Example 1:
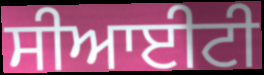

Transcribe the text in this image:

ਸੀਆਈਟੀ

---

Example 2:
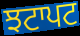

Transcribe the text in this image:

ਝਟਾਪਟ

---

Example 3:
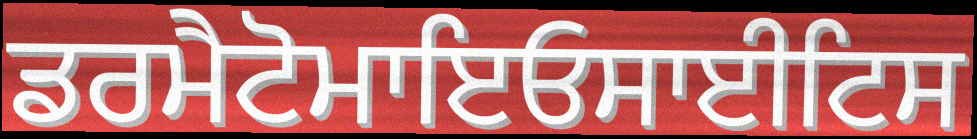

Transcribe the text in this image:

ਡਰਮੈਟੋਮਾਇਓਸਾਈਟਿਸ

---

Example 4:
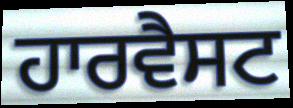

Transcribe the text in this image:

ਹਾਰਵੈਸਟ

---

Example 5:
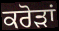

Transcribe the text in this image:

ਕਰੋੜਾਂ